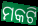
ମକଟି